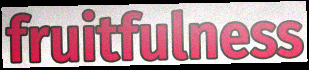
fruitfulness